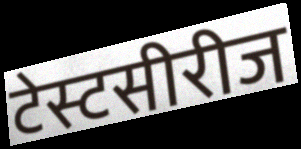
टेस्टसीरीज